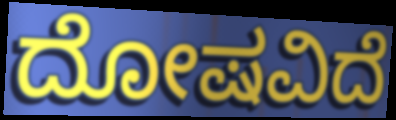
ದೋಷವಿದೆ